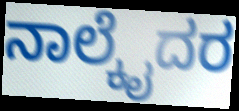
ನಾಲ್ಕೈದರ